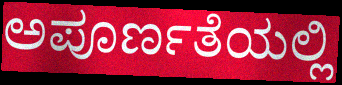
ಅಪೂರ್ಣತೆಯಲ್ಲಿ